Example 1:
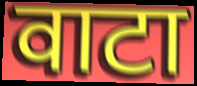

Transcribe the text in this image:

वाटा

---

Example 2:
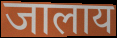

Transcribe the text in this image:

जालाय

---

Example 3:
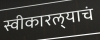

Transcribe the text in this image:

स्वीकारल्याचं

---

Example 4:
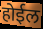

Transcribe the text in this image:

होईल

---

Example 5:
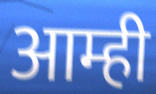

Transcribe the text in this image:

आम्ही